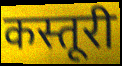
कस्तूरी